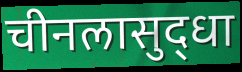
चीनलासुद्धा